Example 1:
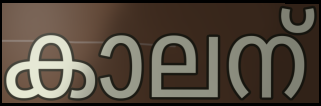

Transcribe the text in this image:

കാലന്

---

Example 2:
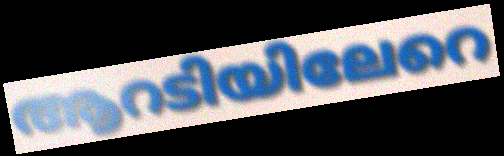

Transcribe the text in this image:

ആറടിയിലേറെ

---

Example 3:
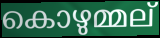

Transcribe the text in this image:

കൊഴുമ്മല്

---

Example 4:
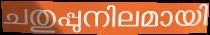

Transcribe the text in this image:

ചതുപ്പുനിലമായി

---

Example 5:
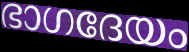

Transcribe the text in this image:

ഭാഗദേയം